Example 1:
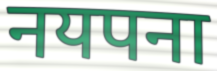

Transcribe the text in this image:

नयपना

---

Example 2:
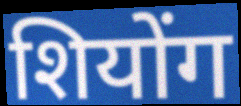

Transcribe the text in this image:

शियोंग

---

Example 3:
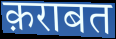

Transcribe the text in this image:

क़राबत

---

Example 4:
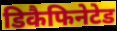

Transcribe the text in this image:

डिकैफिनेटेड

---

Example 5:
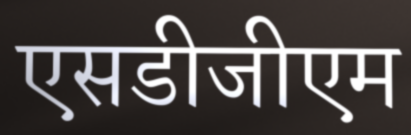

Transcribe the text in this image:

एसडीजीएम